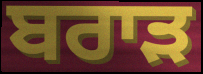
ਬਰਾੜ